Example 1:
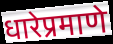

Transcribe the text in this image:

धारेप्रमाणे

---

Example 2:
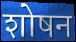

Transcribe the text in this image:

शोषन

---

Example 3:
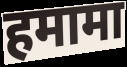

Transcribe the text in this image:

हमामा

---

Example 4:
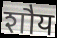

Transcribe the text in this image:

शौय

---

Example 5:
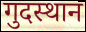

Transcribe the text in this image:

गुदस्थान